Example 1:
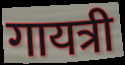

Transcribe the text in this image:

गायत्री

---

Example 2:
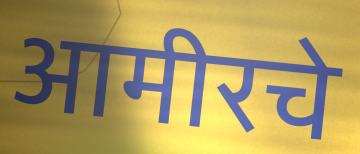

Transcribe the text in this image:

आमीरचे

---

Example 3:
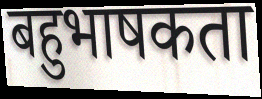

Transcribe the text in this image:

बहुभाषकता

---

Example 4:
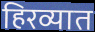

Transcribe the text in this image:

हिरव्यात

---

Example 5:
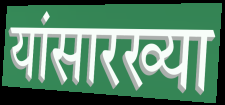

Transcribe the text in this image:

यांसारख्या